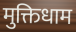
मुक्तिधाम